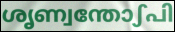
ശൃണ്വന്തോഽപി